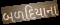
બળદિયાના